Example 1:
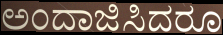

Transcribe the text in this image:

ಅಂದಾಜಿಸಿದರೂ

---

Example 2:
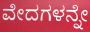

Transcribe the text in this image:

ವೇದಗಳನ್ನೇ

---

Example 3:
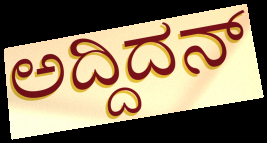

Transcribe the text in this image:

ಅದ್ದಿದನ್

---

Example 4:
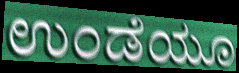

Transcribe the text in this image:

ಉಂಡೆಯೂ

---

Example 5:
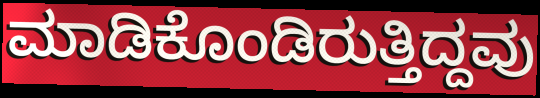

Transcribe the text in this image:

ಮಾಡಿಕೊಂಡಿರುತ್ತಿದ್ದವು